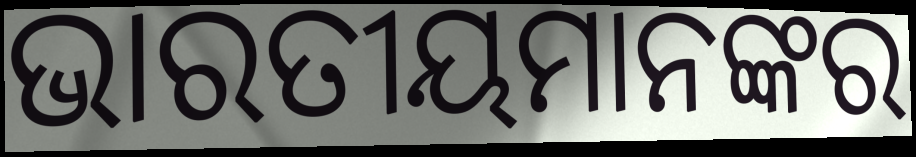
ଭାରତୀୟମାନଙ୍କର